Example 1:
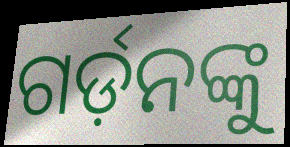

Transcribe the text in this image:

ଗର୍ଡ଼ନଙ୍କୁ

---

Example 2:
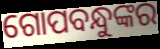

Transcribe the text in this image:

ଗୋପବନ୍ଧୁଙ୍କର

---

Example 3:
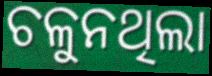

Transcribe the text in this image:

ଚଳୁନଥିଲା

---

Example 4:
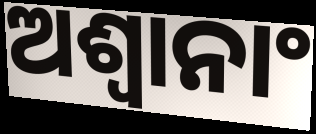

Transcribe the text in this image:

ଅଶ୍ଵାନାଂ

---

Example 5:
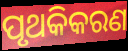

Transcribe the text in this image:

ପୃଥକିକରଣ